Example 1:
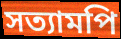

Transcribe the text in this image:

সত্যামপি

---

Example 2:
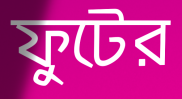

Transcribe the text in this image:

ফুটের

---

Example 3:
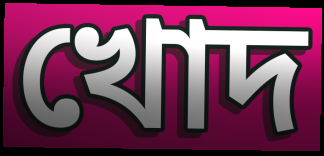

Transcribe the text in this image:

খোদ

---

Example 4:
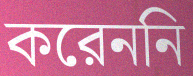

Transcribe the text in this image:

করেননি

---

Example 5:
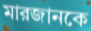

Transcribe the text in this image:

মারজানকে